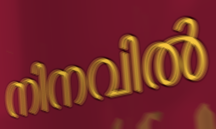
നിനവിൽ